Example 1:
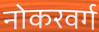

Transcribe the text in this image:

नोकरवर्ग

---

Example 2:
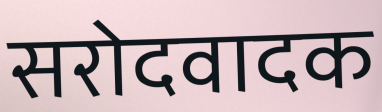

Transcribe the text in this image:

सरोदवादक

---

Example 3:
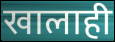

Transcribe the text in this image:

खालाही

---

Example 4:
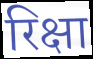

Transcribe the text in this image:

रिक्षा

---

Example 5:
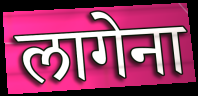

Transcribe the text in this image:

लागेना